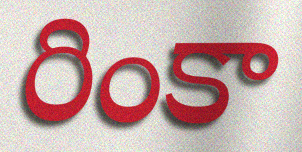
రింకా